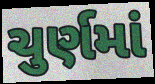
ચુર્ણમાં